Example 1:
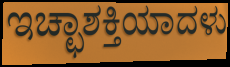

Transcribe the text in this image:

ಇಚ್ಛಾಶಕ್ತಿಯಾದಳು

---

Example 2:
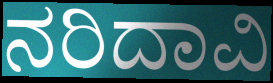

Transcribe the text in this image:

ನರಿದಾವಿ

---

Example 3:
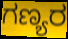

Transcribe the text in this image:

ಗಣ್ಯರ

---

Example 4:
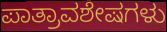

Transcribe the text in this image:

ಪಾತ್ರಾವಶೇಷಗಳು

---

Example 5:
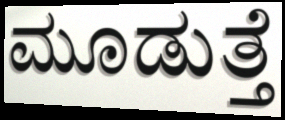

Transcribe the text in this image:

ಮೂಡುತ್ತೆ